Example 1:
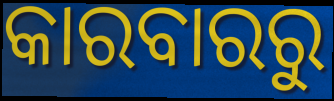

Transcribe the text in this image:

କାରବାରରୁ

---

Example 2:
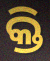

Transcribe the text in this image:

କ୍ତି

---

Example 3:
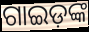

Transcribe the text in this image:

ଗାଇଡ଼ଙ୍କ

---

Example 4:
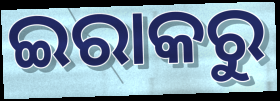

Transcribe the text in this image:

ଇରାକରୁ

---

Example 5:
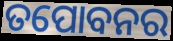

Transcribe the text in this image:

ତପୋବନର